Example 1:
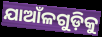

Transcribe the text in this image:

ଯାଆଁଳଗୁଡ଼ିକୁ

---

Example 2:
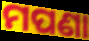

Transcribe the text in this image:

ମପଣା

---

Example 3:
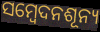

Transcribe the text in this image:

ସମ୍ବେଦନଶୂନ୍ୟ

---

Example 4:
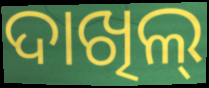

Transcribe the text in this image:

ଦାଖିଲ୍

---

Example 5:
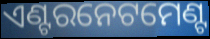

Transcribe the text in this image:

ଏଣ୍ଟରନେଟମେଣ୍ଟ